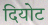
दियोट